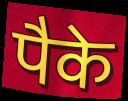
पैके